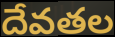
దేవతల